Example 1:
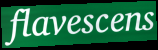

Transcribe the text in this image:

flavescens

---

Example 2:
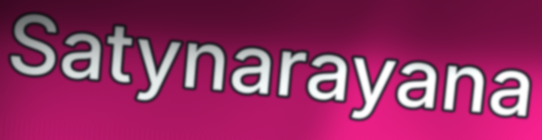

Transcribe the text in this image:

Satynarayana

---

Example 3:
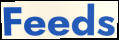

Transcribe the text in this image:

Feeds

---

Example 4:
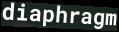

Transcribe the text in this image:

diaphragm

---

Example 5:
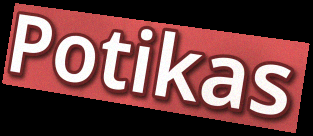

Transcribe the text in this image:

Potikas